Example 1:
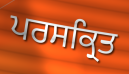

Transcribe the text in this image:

ਪਰਸਕ੍ਰਿਤ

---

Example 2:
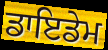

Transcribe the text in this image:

ਡਾਇਡੇਮ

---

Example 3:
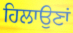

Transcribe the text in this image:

ਹਿਲਾਉਣਾਂ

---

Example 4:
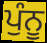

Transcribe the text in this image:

ਪੁੰਨੂ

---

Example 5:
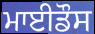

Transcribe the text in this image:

ਮਾਈਡੌਸ